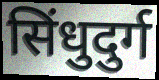
सिंधुदुर्ग